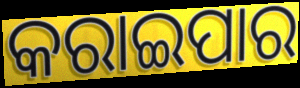
କରାଇପାର